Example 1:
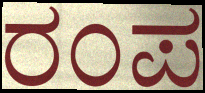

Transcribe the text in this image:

ರಂಪ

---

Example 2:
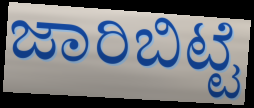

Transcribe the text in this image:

ಜಾರಿಬಿಟ್ಟೆ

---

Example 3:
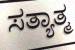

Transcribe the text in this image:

ಸತ್ಯಾತ್ಮ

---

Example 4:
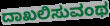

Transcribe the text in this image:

ದಾಖಲಿಸುವಂಥ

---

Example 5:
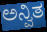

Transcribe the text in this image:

ಅನ್ವಿತ